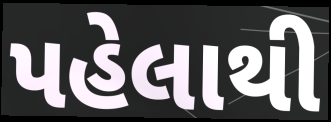
પહેલાથી